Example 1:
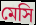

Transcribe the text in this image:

মেসি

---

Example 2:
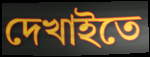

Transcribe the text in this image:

দেখাইতে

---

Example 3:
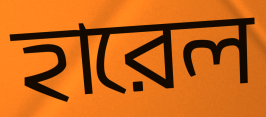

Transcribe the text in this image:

হারেল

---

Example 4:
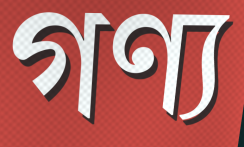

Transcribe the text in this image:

গণ্য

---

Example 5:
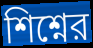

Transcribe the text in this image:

শিশ্নের